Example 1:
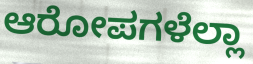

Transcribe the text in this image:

ಆರೋಪಗಳೆಲ್ಲಾ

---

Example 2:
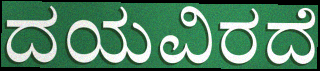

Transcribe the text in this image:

ದಯವಿರದೆ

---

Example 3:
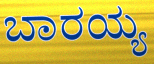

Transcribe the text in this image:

ಬಾರಯ್ಯ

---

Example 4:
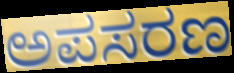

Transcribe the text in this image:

ಅಪಸರಣ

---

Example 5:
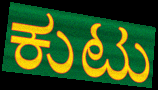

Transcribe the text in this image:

ಕುಟು